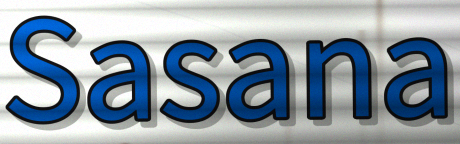
Sasana